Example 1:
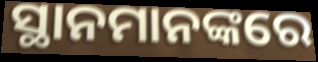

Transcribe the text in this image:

ସ୍ଥାନମାନଙ୍କରେ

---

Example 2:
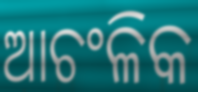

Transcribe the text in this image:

ଆଚଂଳିକ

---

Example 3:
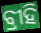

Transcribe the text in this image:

ବ୍ରୀହି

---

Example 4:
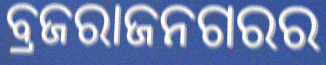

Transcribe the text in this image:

ବ୍ରଜରାଜନଗରର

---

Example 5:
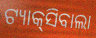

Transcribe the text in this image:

ଟ୍ୟାକ୍‌ସିବାଲା